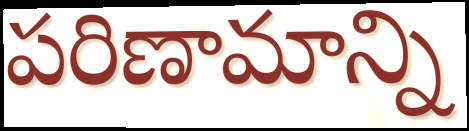
పరిణామాన్ని